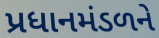
પ્રધાનમંડળને